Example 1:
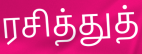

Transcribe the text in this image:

ரசித்துத்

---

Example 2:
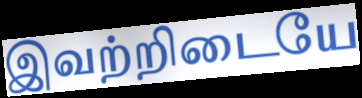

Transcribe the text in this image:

இவற்றிடையே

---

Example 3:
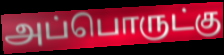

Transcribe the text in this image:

அப்பொருட்கு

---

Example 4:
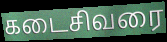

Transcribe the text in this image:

கடைசிவரை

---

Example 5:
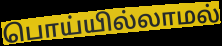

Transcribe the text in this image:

பொய்யில்லாமல்